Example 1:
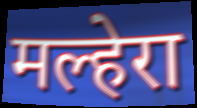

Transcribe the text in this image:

मल्हेरा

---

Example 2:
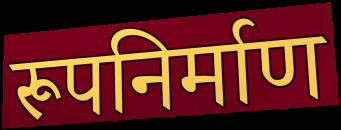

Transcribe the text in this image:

रूपनिर्माण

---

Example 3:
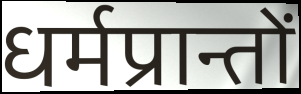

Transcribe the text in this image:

धर्मप्रान्तों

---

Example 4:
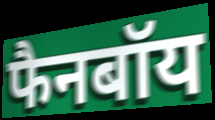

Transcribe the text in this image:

फैनबॉय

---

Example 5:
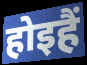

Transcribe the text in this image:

होइहैं